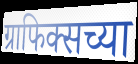
ग्राफिक्सच्या